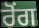
ਰੋਂਗ